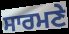
ਸਾਰਮਣੇ